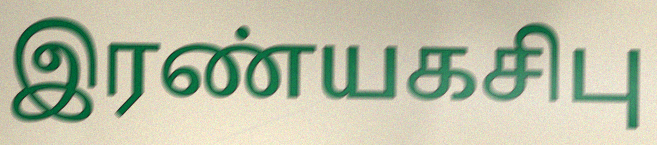
இரண்யகசிபு